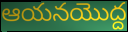
ఆయనయొద్ద